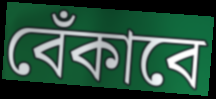
বেঁকাবে